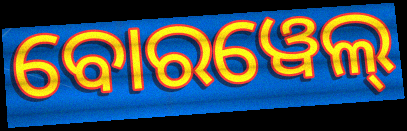
ବୋରୱେଲ୍